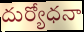
దుర్యోధనా